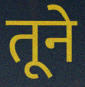
तूने